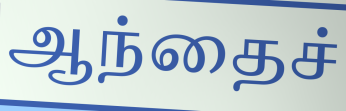
ஆந்தைச்